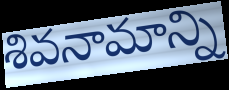
శివనామాన్ని